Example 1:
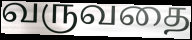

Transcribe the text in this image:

வருவதை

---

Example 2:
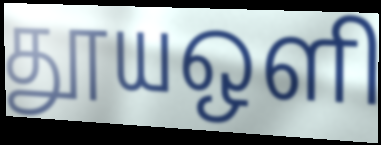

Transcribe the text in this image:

தூயஒளி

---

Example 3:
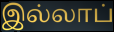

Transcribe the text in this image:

இல்லாப்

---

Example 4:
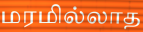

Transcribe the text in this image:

மரமில்லாத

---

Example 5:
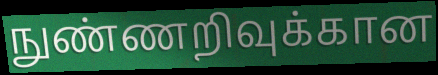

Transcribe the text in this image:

நுண்ணறிவுக்கான